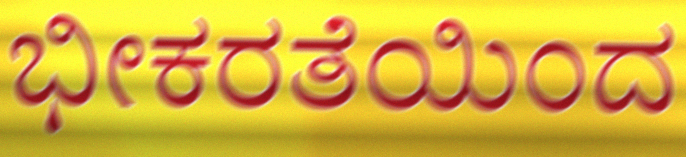
ಭೀಕರತೆಯಿಂದ